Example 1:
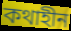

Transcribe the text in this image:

কথাহীন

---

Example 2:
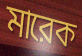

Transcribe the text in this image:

মারেক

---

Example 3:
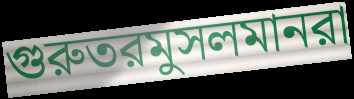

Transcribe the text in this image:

গুরুতরমুসলমানরা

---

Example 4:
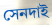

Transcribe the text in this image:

সেনদাই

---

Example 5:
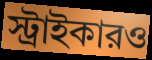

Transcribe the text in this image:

স্ট্রাইকারও